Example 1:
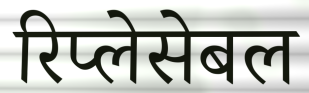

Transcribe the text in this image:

रिप्लेसेबल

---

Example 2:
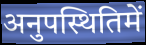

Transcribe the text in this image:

अनुपस्थितिमें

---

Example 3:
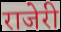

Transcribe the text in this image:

राजेरी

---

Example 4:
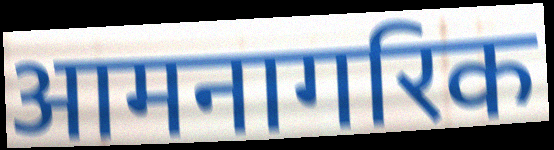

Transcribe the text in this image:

आमनागरिक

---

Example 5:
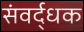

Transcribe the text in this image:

संवर्द्धक